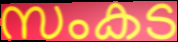
സംകട